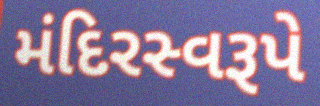
મંદિરસ્વરૂપે